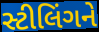
સ્ટીલિંગને